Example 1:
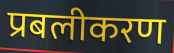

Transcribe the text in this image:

प्रबलीकरण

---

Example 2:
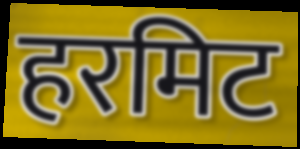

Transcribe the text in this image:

हरमिट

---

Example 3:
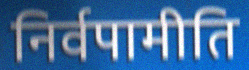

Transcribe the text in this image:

निर्वपामीति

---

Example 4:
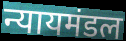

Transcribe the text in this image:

न्यायमंडल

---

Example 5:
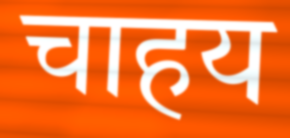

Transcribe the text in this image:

चाहय